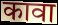
कावा